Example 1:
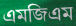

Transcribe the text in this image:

এমজিএম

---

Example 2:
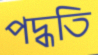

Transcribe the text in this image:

পদ্ধতি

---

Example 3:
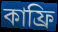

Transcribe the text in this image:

কাফ্রি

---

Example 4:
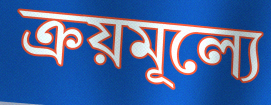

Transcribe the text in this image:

ক্রয়মূল্যে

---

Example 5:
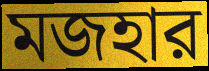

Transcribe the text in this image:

মজহার